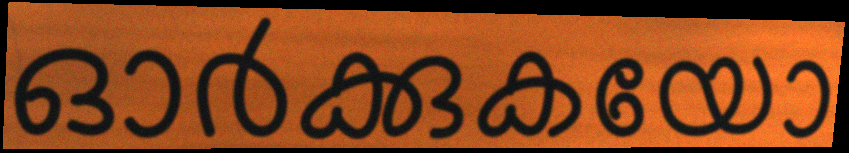
ഓർക്കുകയോ